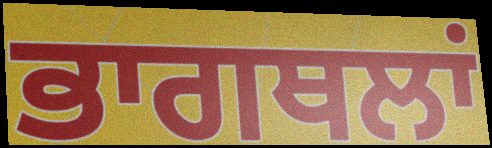
ਭਾਗਥਲਾਂ